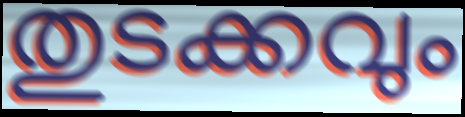
തുടക്കവും